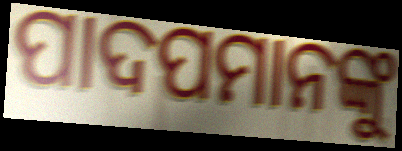
ପାଦପମାନଙ୍କୁ